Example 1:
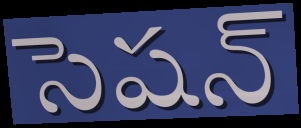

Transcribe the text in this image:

సెషన్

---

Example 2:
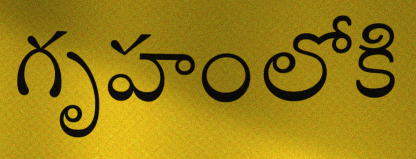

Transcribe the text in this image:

గృహంలోకి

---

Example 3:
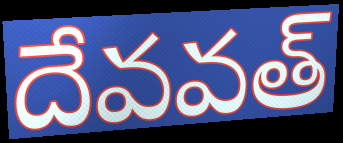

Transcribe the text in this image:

దేవవత్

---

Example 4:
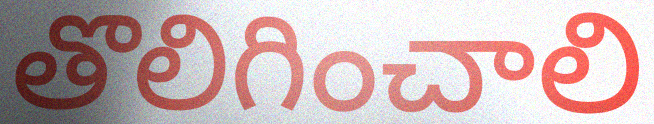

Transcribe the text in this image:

తొలిగించాలి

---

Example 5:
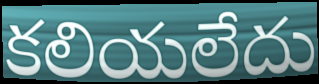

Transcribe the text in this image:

కలియలేదు